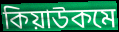
কিয়াউকমে